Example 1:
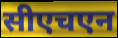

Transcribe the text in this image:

सीएचएन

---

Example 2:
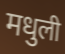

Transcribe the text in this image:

मधुली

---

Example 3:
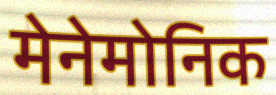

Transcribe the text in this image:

मेनेमोनिक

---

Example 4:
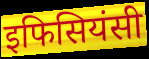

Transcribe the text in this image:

इफिसियंसी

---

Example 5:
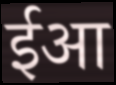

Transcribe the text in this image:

ईआ